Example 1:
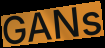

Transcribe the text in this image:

GANs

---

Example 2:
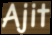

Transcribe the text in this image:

Ajit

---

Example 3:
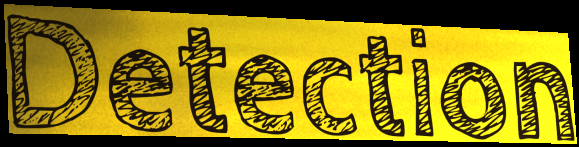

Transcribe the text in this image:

Detection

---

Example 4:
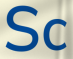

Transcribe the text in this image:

Sc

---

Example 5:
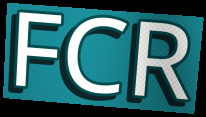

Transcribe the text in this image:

FCR